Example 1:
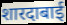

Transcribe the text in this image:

शारदाबाई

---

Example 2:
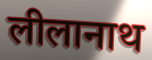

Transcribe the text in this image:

लीलानाथ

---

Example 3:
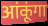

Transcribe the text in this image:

आंकूंगा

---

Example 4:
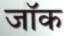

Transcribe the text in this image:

जॉक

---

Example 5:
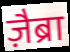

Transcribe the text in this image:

ज़ैब्रा